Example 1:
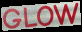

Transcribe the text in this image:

GLOW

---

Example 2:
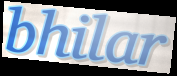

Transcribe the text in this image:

bhilar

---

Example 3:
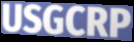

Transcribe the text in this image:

USGCRP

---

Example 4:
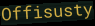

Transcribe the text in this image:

Offisusty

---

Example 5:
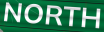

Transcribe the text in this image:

NORTH